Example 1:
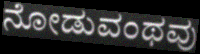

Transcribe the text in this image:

ನೋಡುವಂಥವು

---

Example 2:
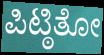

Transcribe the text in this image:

ಪಿಟ್ಠಿತೋ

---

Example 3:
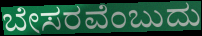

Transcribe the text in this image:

ಬೇಸರವೆಂಬುದು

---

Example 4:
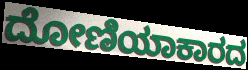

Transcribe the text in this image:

ದೋಣಿಯಾಕಾರದ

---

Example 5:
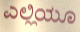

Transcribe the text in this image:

ಎಲ್ಲಿಯೂ